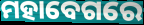
ମହାବେଗରେ